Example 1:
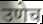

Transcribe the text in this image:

उणेच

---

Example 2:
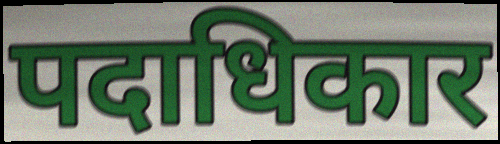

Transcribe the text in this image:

पदाधिकार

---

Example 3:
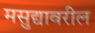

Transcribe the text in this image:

मसुद्यावरील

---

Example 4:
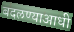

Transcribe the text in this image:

बदलण्याआधी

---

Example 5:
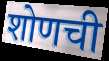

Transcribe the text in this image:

शोणची